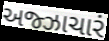
અજ્ઝાચારં